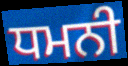
ਧਮਨੀ